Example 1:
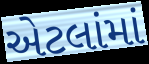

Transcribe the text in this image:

એટલાંમાં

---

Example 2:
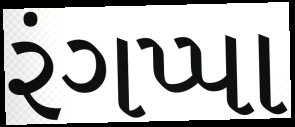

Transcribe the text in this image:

રંગપ્પા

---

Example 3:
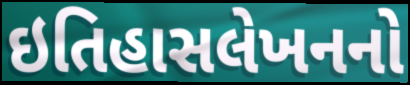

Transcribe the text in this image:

ઇતિહાસલેખનનો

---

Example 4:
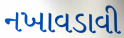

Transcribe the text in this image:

નખાવડાવી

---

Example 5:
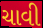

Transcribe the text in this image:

ચાવી